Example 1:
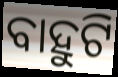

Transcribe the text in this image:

ବାହୁଟି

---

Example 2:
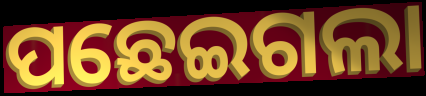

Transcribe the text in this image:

ପଛେଇଗଲା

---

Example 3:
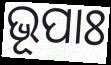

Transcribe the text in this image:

ଭୂପାଃ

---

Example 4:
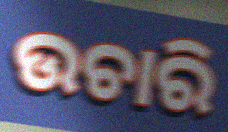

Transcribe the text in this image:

ଉଚାରି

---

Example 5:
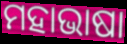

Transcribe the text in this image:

ମହାଭାଷା